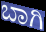
ಬಾಗಿ